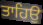
ਤਾਹਿਉ